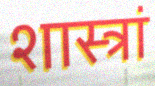
शास्त्रां